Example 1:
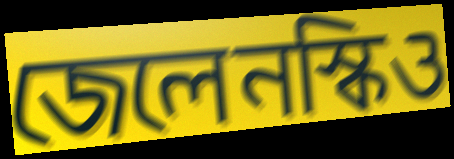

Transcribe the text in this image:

জেলেনস্কিও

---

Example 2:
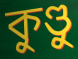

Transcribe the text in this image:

কুণ্ডু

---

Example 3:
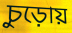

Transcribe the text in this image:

চুড়োয়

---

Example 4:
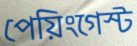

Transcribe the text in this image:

পেয়িংগেস্ট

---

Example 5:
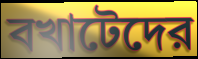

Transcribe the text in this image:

বখাটেদের